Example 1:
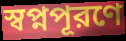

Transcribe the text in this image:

স্বপ্নপূরণে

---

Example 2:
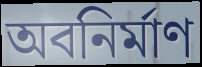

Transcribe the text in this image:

অবনির্মাণ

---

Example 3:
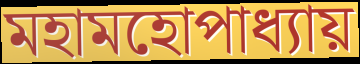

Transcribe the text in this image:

মহামহোপাধ্যায়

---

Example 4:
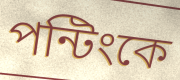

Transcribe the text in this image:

পন্টিংকে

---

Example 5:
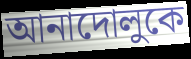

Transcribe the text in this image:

আনাদোলুকে